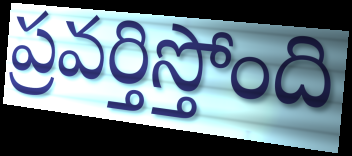
ప్రవర్తిస్తోంది